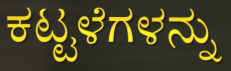
ಕಟ್ಟಳೆಗಳನ್ನು